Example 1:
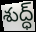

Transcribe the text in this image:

శుద్ధ్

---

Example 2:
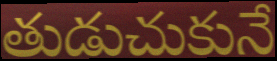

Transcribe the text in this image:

తుడుచుకునే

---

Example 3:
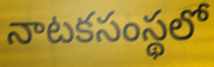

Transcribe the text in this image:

నాటకసంస్థలో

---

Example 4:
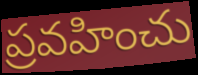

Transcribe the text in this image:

ప్రవహించు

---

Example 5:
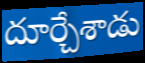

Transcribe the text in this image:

దూర్చేశాడు